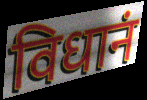
विधानं